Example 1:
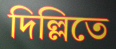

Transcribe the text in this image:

দিল্লিতে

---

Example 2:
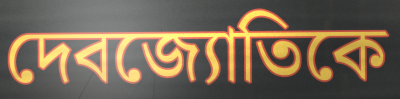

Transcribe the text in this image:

দেবজ্যোতিকে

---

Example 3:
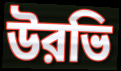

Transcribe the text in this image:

উরভি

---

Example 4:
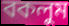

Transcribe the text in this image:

বকলুম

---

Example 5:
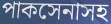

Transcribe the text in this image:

পাকসেনাসহ